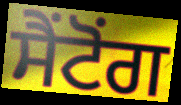
ਸੈਂਟੋਂਗ